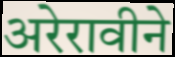
अरेरावीने